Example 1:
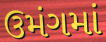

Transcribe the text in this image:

ઉમંગમાં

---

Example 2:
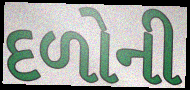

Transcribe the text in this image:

દળોની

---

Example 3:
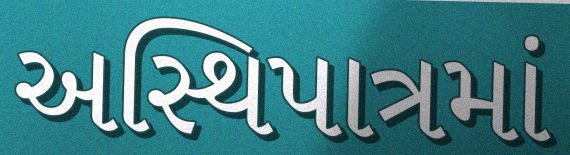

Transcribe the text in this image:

અસ્થિપાત્રમાં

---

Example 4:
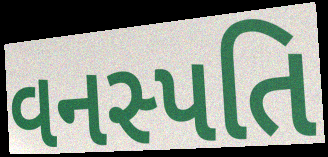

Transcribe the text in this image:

વનસ્પતિ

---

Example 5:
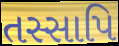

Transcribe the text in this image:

તસ્સાપિ